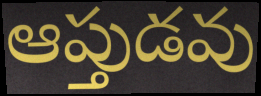
ఆప్తుడవు